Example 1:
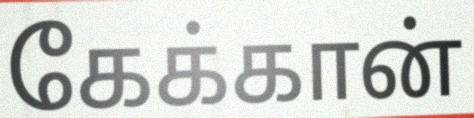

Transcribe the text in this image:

கேக்கான்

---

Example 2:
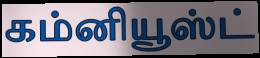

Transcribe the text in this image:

கம்னியூஸ்ட்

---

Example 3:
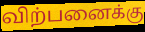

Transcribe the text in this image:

விற்பனைக்கு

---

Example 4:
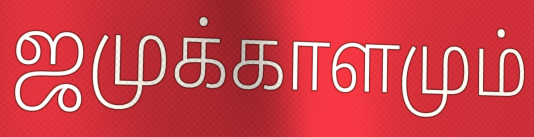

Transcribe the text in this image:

ஜமுக்காளமும்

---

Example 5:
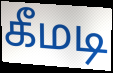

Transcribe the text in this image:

கீமடி